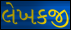
લેખકજી